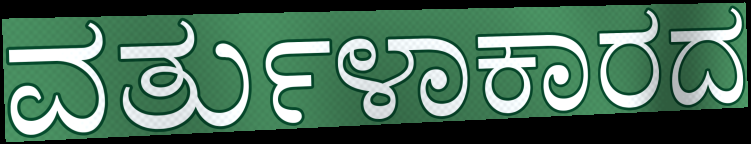
ವರ್ತುಳಾಕಾರದ